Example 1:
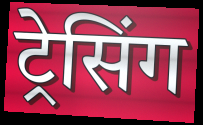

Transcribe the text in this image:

ट्रेसिंग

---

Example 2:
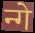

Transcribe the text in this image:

न्गे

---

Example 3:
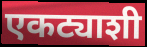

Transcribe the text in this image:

एकट्याशी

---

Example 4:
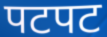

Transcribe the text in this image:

पटपट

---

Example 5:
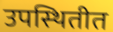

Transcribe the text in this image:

उपस्थितीत